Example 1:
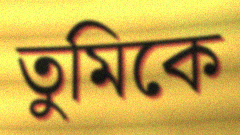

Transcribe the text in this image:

তুমিকে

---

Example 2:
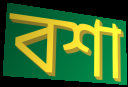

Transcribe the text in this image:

বশা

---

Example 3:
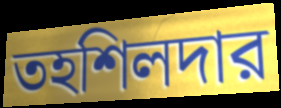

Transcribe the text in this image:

তহশিলদার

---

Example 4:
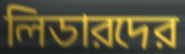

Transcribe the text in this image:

লিডারদের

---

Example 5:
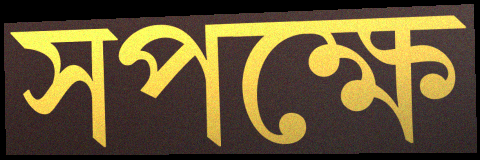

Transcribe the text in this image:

সপক্ষে